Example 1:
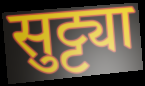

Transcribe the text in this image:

सुट्ट्या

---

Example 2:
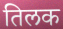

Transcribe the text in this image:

तिलक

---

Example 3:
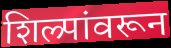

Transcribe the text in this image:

शिल्पांवरून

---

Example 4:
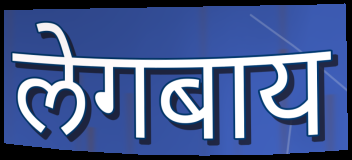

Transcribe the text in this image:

लेगबाय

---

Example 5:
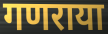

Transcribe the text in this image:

गणराया